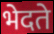
भेदते